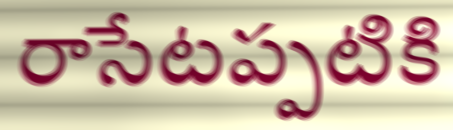
రాసేటప్పటికి